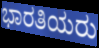
ಭಾರತಿಯರು